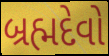
બ્રહ્મદેવો